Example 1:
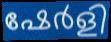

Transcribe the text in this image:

ഷേർളി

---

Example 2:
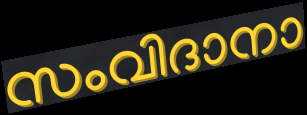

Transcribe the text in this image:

സംവിദാനാ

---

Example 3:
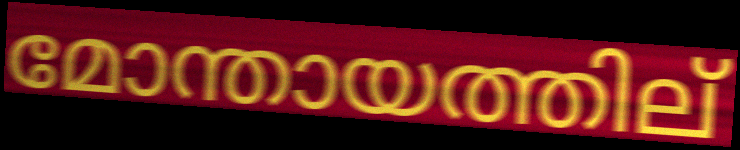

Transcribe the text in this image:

മോന്തായത്തില്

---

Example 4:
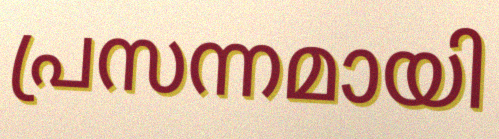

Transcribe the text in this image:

പ്രസന്നമായി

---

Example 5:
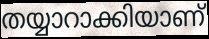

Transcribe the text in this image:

തയ്യാറാക്കിയാണ്